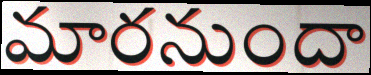
మారనుందా